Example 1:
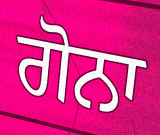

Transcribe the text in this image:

ਗੋਨਾ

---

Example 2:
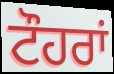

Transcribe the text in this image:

ਟੌਹਰਾਂ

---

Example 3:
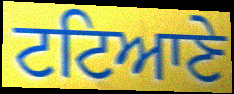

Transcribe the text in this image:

ਟਟਿਆਣੇ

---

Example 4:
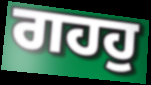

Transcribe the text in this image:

ਗਹਹੁ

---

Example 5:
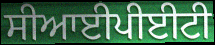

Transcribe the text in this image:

ਸੀਆਈਪੀਈਟੀ